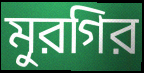
মুরগির